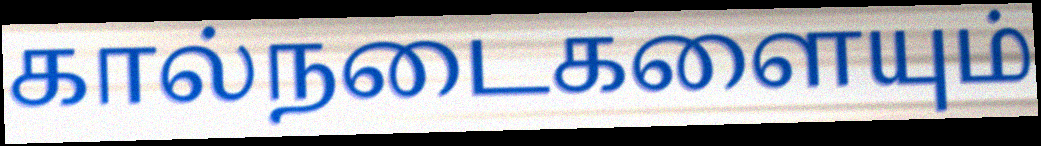
கால்நடைகளையும்